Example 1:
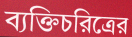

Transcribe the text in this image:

ব্যক্তিচরিত্রের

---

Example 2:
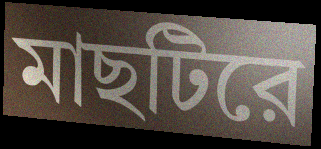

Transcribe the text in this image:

মাছটিরে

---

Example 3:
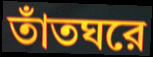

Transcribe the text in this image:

তাঁতঘরে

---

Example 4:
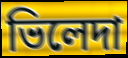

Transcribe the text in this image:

ভিলেদা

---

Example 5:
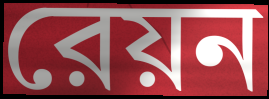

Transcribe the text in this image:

রেয়ন